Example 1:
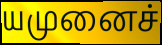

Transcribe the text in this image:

யமுனைச்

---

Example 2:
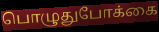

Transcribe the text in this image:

பொழுதுபோக்கை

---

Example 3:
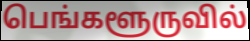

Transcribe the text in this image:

பெங்களூருவில்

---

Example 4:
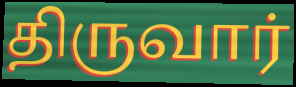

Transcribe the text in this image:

திருவார்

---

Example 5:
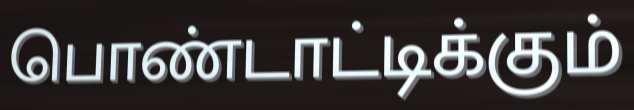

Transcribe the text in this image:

பொண்டாட்டிக்கும்